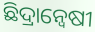
ଛିଦ୍ରାନ୍ୱେଷୀ